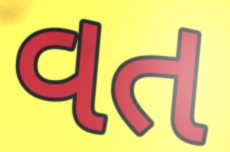
વત